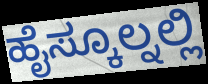
ಹೈಸ್ಕೂಲ್ನಲ್ಲಿ